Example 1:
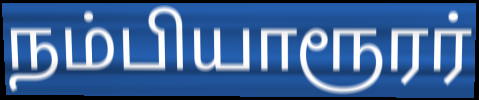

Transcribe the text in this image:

நம்பியாரூரர்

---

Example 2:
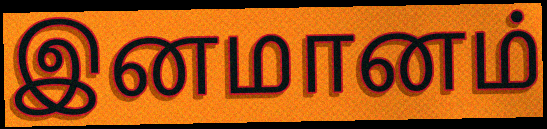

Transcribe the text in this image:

இனமானம்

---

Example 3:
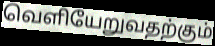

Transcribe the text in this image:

வெளியேறுவதற்கும்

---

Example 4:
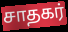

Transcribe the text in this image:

சாதகர்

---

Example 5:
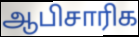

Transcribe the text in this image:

ஆபிசாரிக